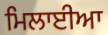
ਮਿਲਾਈਆ